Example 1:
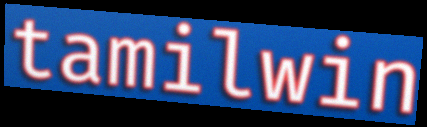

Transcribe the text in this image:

tamilwin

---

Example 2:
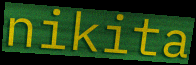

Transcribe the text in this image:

nikita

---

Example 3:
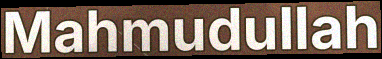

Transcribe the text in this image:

Mahmudullah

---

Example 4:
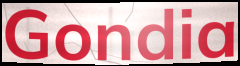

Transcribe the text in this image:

Gondia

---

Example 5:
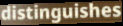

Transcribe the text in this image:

distinguishes